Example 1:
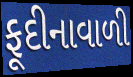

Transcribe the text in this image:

ફૂદીનાવાળી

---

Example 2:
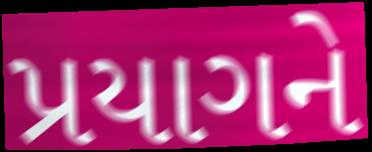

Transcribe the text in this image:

પ્રયાગને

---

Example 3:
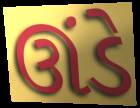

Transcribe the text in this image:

ઊંડે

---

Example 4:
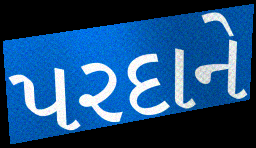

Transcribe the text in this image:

પરદાને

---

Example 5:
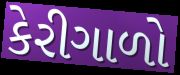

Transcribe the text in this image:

કેરીગાળો